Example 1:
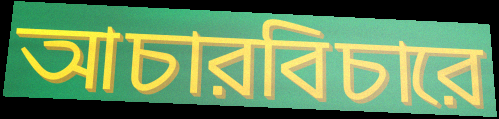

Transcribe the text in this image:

আচারবিচারে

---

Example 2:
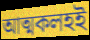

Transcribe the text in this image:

আত্মকলহই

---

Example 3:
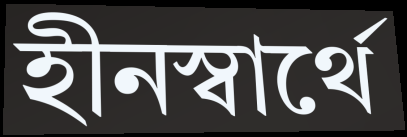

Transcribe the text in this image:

হীনস্বার্থে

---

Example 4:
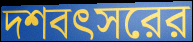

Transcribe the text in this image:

দশবৎসরের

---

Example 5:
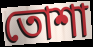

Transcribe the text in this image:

তোশা